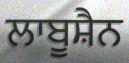
ਲਾਬੂਸ਼ੈਨ